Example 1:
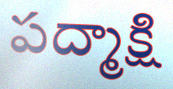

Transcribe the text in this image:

పద్మాక్షి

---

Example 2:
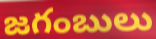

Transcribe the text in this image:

జగంబులు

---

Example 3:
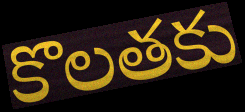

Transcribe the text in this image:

కొలతకు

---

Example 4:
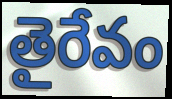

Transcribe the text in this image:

తైరేవం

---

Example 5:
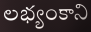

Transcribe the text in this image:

లభ్యంకాని